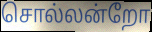
சொல்லன்றோ